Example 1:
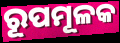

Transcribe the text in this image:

ରୂପମୂଳକ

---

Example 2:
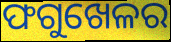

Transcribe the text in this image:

ଫଗୁଖେଳର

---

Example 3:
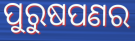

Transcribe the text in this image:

ପୁରୁଷପଣର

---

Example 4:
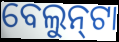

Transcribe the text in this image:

ବେଲୁନ୍‌ଟା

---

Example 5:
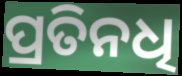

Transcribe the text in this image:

ପ୍ରତିନଧି